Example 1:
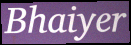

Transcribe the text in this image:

Bhaiyer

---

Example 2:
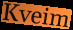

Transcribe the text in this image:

Kveim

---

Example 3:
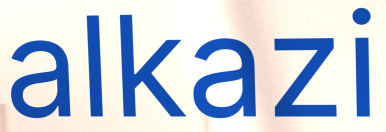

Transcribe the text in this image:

alkazi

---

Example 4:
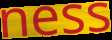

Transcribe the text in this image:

ness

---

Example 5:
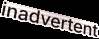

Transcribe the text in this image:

inadvertent